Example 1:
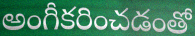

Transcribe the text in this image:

అంగీకరించడంతో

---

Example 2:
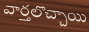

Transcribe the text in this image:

వార్తలొచ్చాయి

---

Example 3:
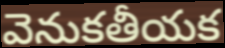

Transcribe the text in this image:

వెనుకతీయక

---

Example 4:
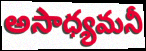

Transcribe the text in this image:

అసాధ్యమనీ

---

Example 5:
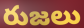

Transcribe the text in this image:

రుజలు